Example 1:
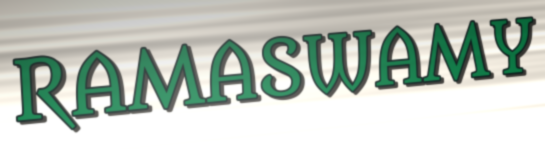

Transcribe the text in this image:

RAMASWAMY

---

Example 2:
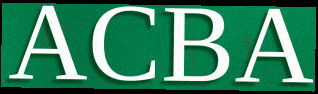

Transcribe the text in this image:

ACBA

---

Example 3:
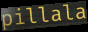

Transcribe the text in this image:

pillala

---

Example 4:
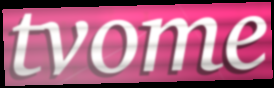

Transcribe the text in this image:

tvome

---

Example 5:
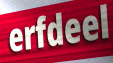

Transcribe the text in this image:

erfdeel